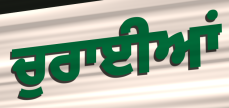
ਚੁਰਾਈਆਂ